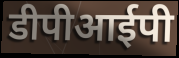
डीपीआईपी